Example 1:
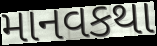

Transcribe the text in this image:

માનવકથા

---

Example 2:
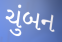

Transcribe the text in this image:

ચુંબન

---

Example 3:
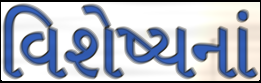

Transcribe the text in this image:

વિશેષ્યનાં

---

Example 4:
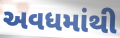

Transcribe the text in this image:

અવધમાંથી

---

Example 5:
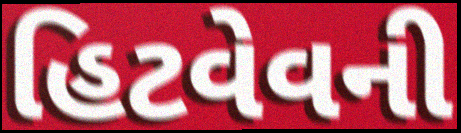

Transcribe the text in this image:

હિટવેવની